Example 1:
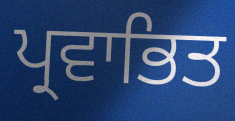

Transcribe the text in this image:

ਪ੍ਰਵਾਭਿਤ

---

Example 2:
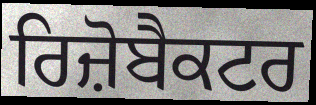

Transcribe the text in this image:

ਰਿਜ਼ੋਬੈਕਟਰ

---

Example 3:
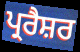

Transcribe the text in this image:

ਪ੍ਰਰੈਸ਼ਰ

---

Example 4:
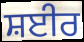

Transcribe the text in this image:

ਸ਼ਈਰ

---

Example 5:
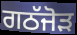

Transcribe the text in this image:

ਗਠੱਜੋੜ